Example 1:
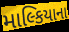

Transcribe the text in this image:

માલ્કિયાના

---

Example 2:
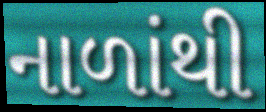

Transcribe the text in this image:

નાળાંથી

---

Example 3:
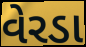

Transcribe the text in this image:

વેરડા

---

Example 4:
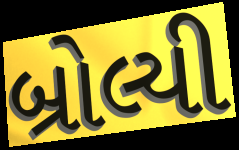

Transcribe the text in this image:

બ્રોલ્યી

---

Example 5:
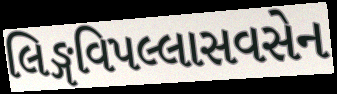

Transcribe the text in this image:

લિઙ્ગવિપલ્લાસવસેન